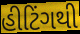
હીટિંગથી